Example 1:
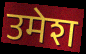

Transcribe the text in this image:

उमेश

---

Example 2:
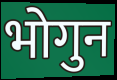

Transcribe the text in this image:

भोगुन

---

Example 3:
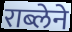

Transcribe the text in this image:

राब्लेने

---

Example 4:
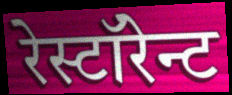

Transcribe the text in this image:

रेस्टॉरेन्ट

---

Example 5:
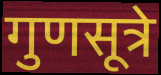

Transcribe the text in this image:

गुणसूत्रे